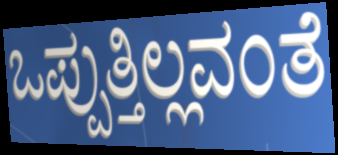
ಒಪ್ಪುತ್ತಿಲ್ಲವಂತೆ